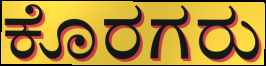
ಕೊರಗರು